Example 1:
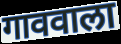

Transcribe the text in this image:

गाववाला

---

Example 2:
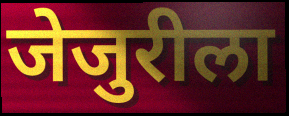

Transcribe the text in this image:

जेजुरीला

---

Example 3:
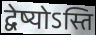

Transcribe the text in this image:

द्वेष्योऽस्ति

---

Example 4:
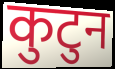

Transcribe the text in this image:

कुटुन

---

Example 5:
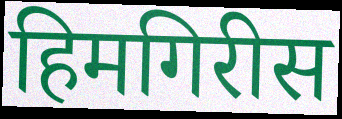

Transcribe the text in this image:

हिमगिरीस